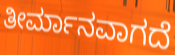
ತೀರ್ಮಾನವಾಗದೆ